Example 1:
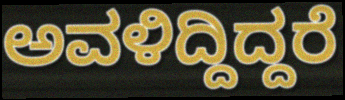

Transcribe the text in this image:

ಅವಳಿದ್ದಿದ್ದರೆ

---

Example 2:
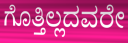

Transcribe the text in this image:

ಗೊತ್ತಿಲ್ಲದವರೇ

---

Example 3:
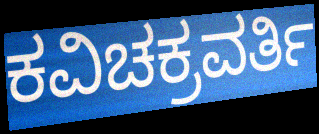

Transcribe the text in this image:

ಕವಿಚಕ್ರವರ್ತಿ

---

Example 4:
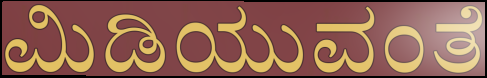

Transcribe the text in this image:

ಮಿಡಿಯುವಂತೆ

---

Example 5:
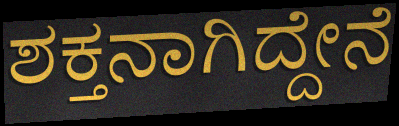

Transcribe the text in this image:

ಶಕ್ತನಾಗಿದ್ದೇನೆ